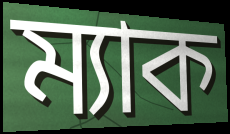
ম্যাক